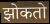
झोकतो